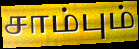
சாம்பும்